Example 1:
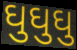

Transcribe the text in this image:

ઘુઘુઘુ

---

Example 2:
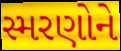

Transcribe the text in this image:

સ્મરણોને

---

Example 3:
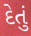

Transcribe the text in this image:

દેતું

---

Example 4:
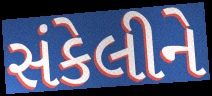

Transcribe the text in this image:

સંકેલીને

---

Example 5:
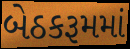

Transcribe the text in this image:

બેઠકરૂમમાં